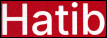
Hatib